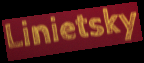
Linietsky